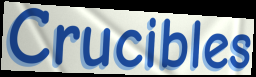
Crucibles